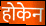
होकेन